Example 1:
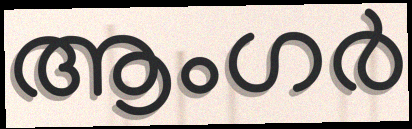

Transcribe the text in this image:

ആംഗർ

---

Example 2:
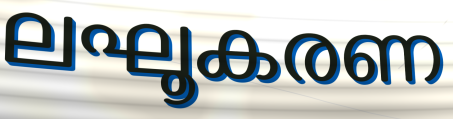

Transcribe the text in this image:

ലഘൂകരണ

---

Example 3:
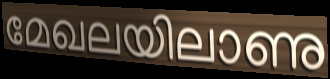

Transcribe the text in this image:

മേഖലയിലാണു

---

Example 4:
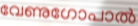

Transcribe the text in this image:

വേണുഗോപാൽ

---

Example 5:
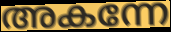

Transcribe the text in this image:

അകന്നേ